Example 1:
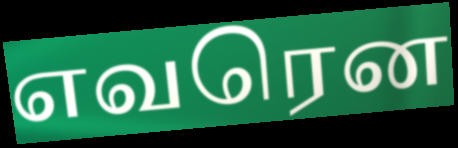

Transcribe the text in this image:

எவரென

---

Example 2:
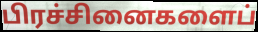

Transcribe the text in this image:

பிரச்சினைகளைப்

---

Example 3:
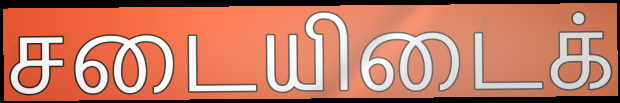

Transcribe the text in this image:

சடையிடைக்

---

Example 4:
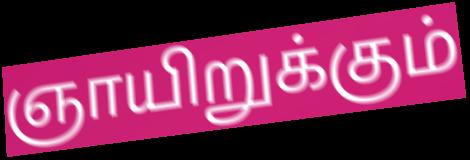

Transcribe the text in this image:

ஞாயிறுக்கும்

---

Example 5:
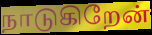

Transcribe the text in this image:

நாடுகிறேன்